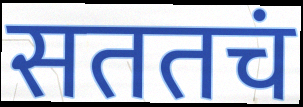
सततचं